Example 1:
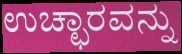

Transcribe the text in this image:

ಉಚ್ಛಾರವನ್ನು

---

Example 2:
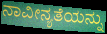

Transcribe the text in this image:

ನಾವೀನ್ಯತೆಯನ್ನು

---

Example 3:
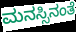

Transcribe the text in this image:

ಮನಸ್ಸಿನಂತೆ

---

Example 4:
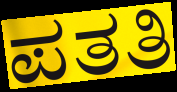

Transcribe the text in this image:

ಪತತಿ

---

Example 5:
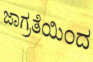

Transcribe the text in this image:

ಜಾಗ್ರತೆಯಿಂದ